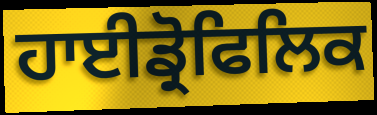
ਹਾਈਡ੍ਰੋਫਿਲਿਕ